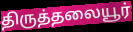
திருத்தலையூர்